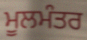
ਮੂਲਮੰਤਰ